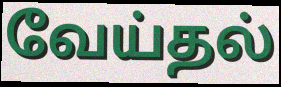
வேய்தல்